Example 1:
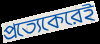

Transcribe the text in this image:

প্রত্যেকেরেই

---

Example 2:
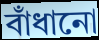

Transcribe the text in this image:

বাঁধানো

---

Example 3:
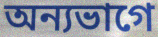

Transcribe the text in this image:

অন্যভাগে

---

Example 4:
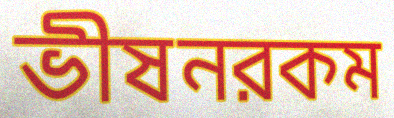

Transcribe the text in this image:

ভীষনরকম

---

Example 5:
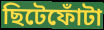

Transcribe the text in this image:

ছিটেফোঁটা